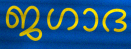
ജഗാദ